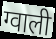
ग्वाली